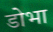
डोभा